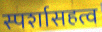
स्पर्शासहत्व